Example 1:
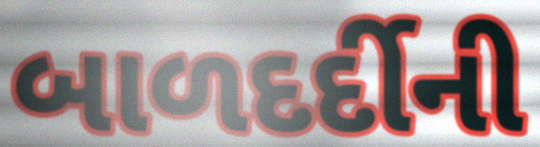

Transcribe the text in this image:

બાળદર્દીની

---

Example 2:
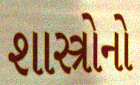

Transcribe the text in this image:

શાસ્ત્રોનો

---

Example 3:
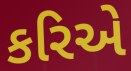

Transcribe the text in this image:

કરિએ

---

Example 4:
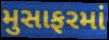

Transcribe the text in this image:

મુસાફરમાં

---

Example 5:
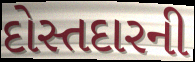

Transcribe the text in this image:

દોસ્તદારની